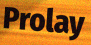
Prolay